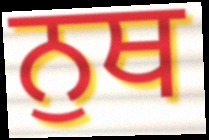
ਨੁਥ